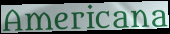
Americana